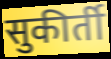
सुकीर्ती